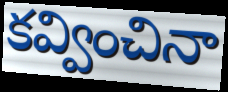
కవ్వించినా